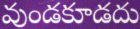
వుండకూడదు